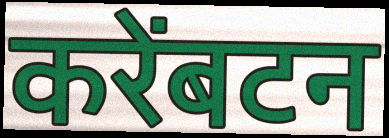
करेंबटन